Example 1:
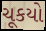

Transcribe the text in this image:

ચૂકયો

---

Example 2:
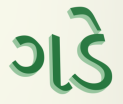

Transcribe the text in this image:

ગડે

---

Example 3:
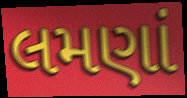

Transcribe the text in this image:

લમણાં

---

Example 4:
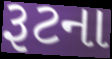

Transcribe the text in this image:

રૂટના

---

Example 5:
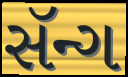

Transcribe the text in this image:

સૅન્ગ